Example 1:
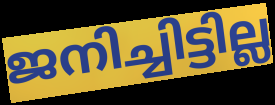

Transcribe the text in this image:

ജനിച്ചിട്ടില്ല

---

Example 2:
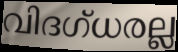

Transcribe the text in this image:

വിദഗ്ധരല്ല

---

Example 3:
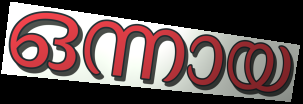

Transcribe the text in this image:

ഒന്നായ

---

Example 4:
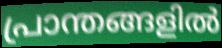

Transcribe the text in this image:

പ്രാന്തങ്ങളിൽ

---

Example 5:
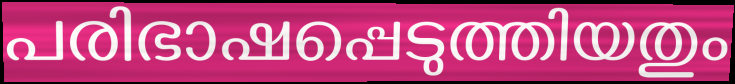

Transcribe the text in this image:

പരിഭാഷപ്പെടുത്തിയതും